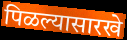
पिळल्यासारखे